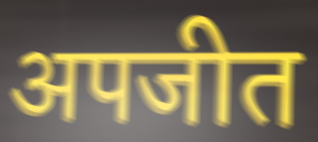
अपजीत